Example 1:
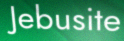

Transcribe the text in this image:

Jebusite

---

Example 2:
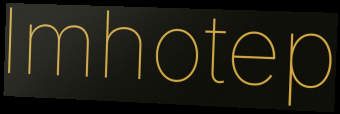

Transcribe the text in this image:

Imhotep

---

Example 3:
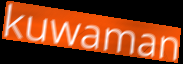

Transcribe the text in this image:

kuwaman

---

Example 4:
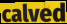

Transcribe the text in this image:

calved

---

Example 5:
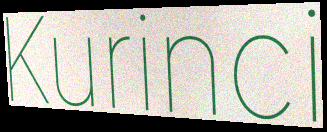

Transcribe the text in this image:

Kurinci